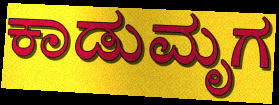
ಕಾಡುಮೃಗ